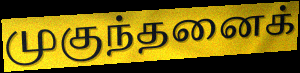
முகுந்தனைக்